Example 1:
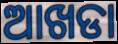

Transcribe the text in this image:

ଆଖଡା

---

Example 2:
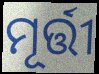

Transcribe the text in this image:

ମୂର୍ତ୍ତୀ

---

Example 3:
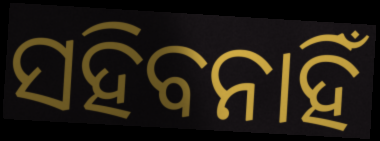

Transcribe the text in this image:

ସହିବନାହିଁ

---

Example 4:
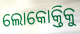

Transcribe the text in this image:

ଲୋକୋକ୍ତିକୁ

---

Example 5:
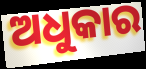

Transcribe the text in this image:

ଅଧୁକାର